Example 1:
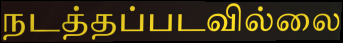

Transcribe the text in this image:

நடத்தப்படவில்லை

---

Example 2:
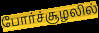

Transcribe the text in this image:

போர்ச்சூழலில்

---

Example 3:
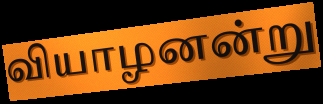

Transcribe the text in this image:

வியாழனன்று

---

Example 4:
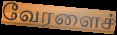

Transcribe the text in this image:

வேரளைச்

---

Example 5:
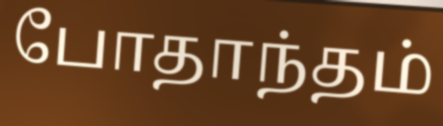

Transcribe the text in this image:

போதாந்தம்